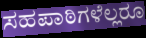
ಸಹಪಾಠಿಗಳೆಲ್ಲರೂ